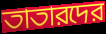
তাতারদের